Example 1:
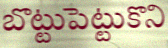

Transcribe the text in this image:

బొట్టుపెట్టుకొని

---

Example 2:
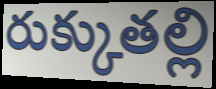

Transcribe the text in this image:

రుక్కుతల్లి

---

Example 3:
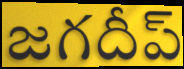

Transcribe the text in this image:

జగదీప్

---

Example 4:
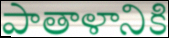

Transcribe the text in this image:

పాతాళానికి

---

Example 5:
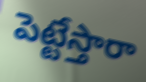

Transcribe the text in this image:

పెట్టేస్తారా